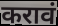
करावं